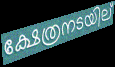
ക്ഷേത്രനടയില്